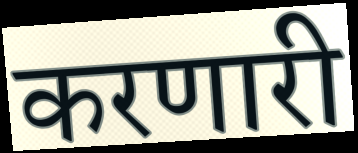
करणारी